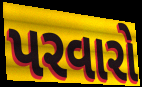
પરવારો